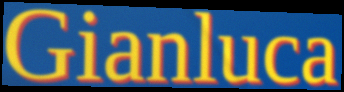
Gianluca